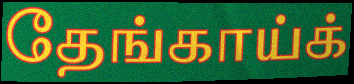
தேங்காய்க்